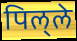
पिल्ले